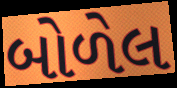
બોળેલ